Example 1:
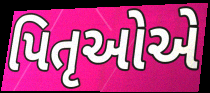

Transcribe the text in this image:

પિતૃઓેએ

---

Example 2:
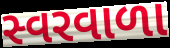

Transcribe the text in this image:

સ્વરવાળા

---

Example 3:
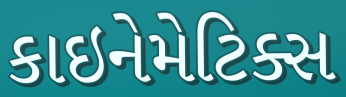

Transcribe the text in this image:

કાઇનેમેટિક્સ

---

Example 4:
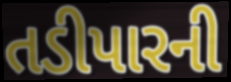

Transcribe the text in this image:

તડીપારની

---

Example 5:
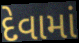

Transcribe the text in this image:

દેવામાં